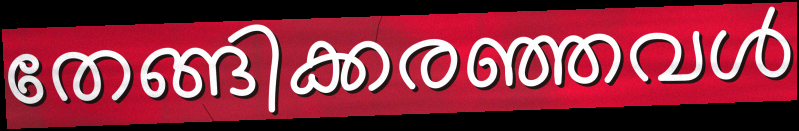
തേങ്ങിക്കരഞ്ഞവൾ